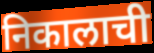
निकालाची